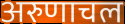
अरुणाचल